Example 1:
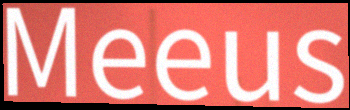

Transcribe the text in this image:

Meeus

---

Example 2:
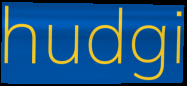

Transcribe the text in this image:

hudgi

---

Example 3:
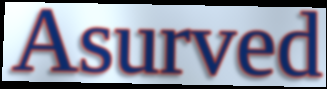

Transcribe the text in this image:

Asurved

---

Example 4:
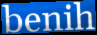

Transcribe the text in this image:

benih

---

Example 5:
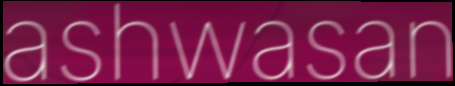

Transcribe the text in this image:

ashwasan